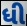
ધી